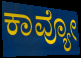
ಕಾವ್ಯೋ